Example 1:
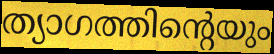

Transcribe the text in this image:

ത്യാഗത്തിന്റെയും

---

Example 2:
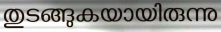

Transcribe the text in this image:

തുടങ്ങുകയായിരുന്നു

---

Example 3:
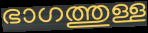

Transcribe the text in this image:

ഭാഗത്തുള്ള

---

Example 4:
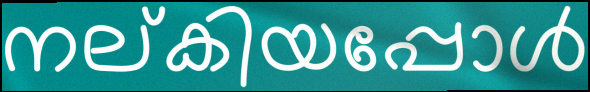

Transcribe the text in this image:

നല്കിയപ്പോൾ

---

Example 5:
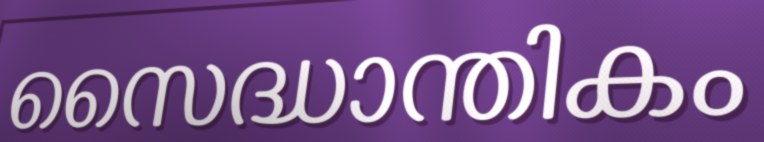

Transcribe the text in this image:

സൈദ്ധാന്തികം